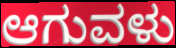
ಆಗುವಳು